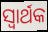
ସ୍ବାର୍ଥକ